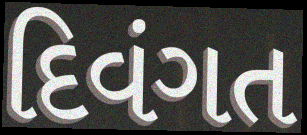
દિવંગત